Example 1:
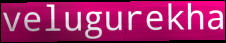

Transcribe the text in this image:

velugurekha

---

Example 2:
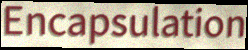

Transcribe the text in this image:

Encapsulation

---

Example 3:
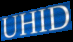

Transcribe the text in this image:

UHID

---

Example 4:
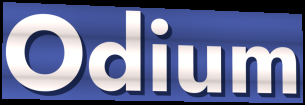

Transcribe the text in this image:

Odium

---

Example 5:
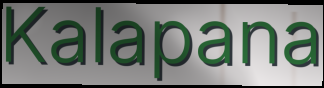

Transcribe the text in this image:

Kalapana